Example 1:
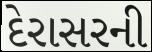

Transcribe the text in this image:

દેરાસરની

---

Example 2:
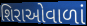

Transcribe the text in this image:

શિરાઓવાળાં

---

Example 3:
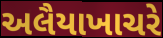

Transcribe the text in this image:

અલૈયાખાચરે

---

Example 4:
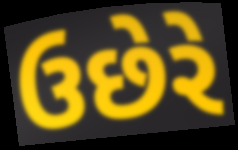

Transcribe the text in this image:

ઉછેરે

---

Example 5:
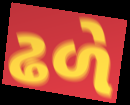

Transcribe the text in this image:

ઢળે